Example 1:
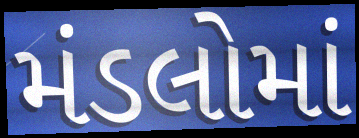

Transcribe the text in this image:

મંડલોમાં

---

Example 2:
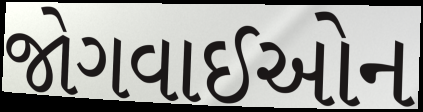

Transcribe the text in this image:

જોગવાઈઓન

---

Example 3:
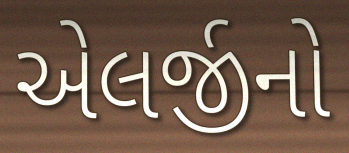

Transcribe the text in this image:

એલર્જીનો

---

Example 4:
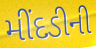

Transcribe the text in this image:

મીંદડીની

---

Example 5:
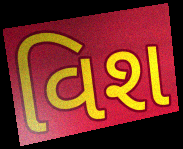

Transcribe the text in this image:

વિશ